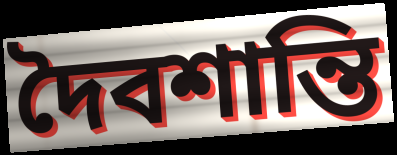
দৈবশান্তি